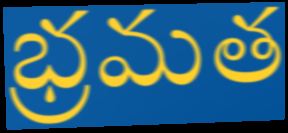
భ్రమత